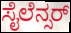
ಸೈಲೆನ್ಸರ್